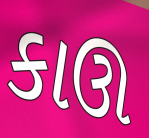
કાઊ